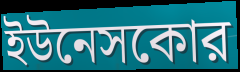
ইউনেসকোর